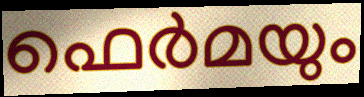
ഫെർമയും